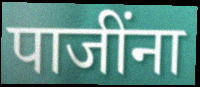
पाजींना